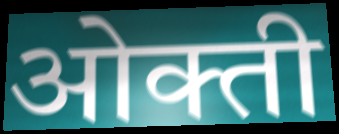
ओक्ती